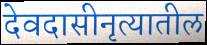
देवदासीनृत्यातील